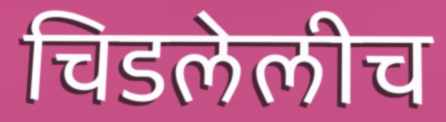
चिडलेलीच